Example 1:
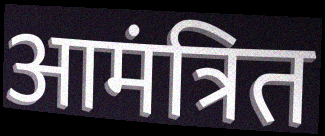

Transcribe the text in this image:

आमंत्रित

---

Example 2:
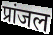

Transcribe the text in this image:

प्रांजल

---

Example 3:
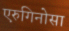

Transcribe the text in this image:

एरुगिनोसा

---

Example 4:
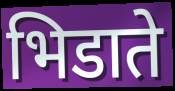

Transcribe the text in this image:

भिडाते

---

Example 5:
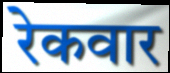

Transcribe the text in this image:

रेकवार